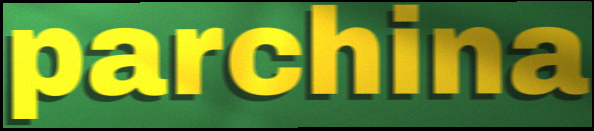
parchina